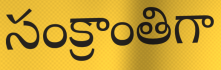
సంక్రాంతిగా